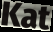
Kat